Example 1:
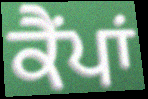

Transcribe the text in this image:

ਕੈੰਪਾਂ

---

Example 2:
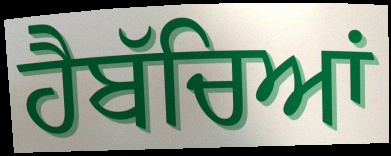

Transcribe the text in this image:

ਹੈਬੱਚਿਆਂ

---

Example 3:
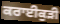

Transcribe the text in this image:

ਕਰਾਈਕੁੜੀ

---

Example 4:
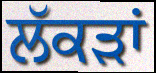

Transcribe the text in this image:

ਲੱਕੜਾਂ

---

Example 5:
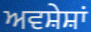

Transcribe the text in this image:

ਅਵਸ਼ੇਸ਼ਾਂ